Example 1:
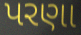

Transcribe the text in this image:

પરણા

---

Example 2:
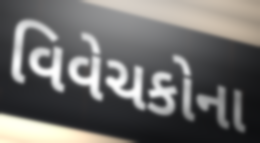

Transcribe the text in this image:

વિવેચકોના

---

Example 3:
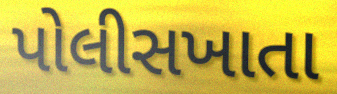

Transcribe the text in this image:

પોલીસખાતા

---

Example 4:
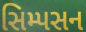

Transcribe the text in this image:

સિમ્પસન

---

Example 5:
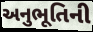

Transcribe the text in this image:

અનુભૂતિની